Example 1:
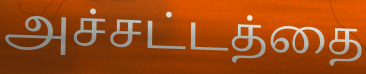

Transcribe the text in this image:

அச்சட்டத்தை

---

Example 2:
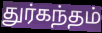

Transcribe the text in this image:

துர்கந்தம்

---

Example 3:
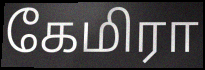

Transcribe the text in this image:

கேமிரா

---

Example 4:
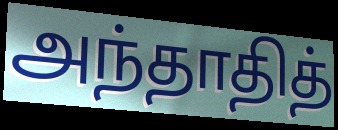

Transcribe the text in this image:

அந்தாதித்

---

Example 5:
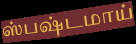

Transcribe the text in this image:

ஸ்பஷ்டமாய்